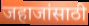
जहाजांसाठी